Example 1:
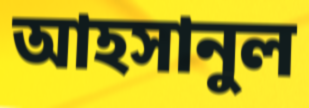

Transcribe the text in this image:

আহসানুল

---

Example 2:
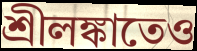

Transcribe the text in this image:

শ্রীলঙ্কাতেও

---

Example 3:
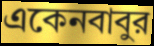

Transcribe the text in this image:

একেনবাবুর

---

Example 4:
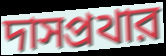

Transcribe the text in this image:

দাসপ্রথার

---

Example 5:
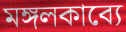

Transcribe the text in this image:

মঙ্গলকাব্যে